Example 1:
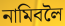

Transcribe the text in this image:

নামিবলৈ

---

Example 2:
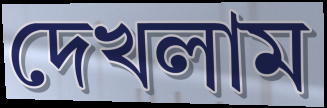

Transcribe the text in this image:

দেখলাম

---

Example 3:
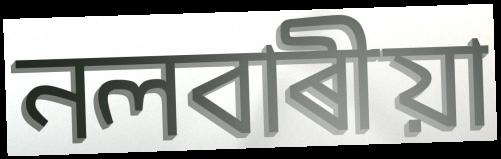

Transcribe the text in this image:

নলবাৰীয়া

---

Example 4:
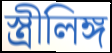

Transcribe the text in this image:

স্ত্ৰীলিঙ্গ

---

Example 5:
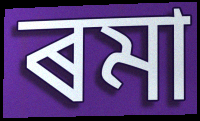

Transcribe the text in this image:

ৰমা